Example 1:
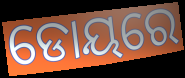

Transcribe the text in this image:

ଡୋୟରେ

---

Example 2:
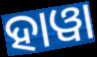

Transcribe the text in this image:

ହାୱା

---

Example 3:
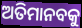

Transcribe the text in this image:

ଅତିମାନବକୁ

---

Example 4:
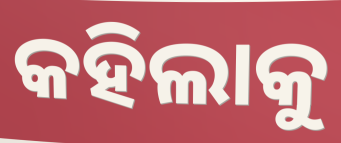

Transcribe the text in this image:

କହିଲାକୁ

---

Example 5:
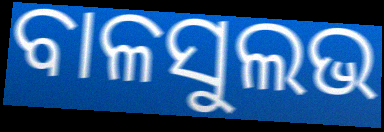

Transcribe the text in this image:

ବାଳସୁଲଭ